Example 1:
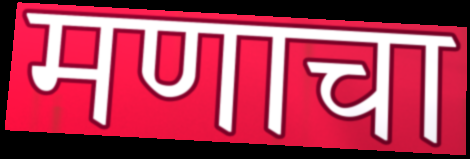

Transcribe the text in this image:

मणाचा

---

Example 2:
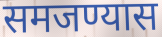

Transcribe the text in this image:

समजण्यास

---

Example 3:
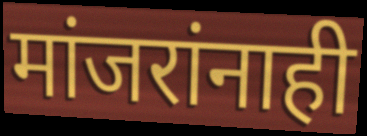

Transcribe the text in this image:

मांजरांनाही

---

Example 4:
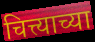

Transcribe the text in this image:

चित्त्याच्या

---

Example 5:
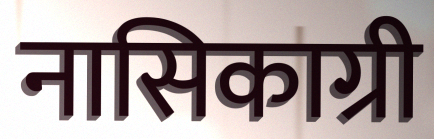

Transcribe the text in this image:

नासिकाग्री